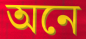
অনে